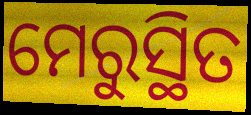
ମେରୁସ୍ଥିତ